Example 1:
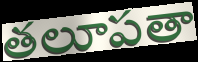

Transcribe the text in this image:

తలూపతా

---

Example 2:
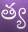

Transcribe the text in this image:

త్య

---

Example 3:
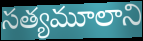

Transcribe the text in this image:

సత్యమూలాని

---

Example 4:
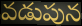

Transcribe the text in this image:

వడుపున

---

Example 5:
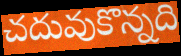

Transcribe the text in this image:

చదువుకొన్నది